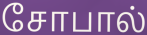
சோபால்